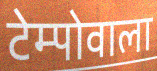
टेम्पोवाला